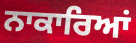
ਨਾਕਾਰਿਆਂ